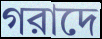
গরাদে